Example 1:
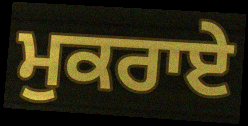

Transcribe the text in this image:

ਮੁਕਰਾਏ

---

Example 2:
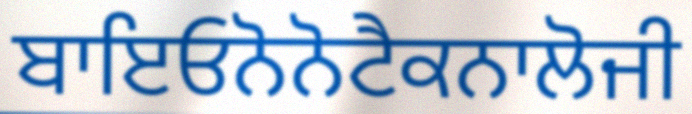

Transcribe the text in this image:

ਬਾਇਓਨੋਨੋਟੈਕਨਾਲੋਜੀ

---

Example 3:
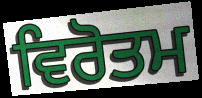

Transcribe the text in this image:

ਵਿਰੋਤਮ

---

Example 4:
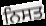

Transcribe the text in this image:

ਨਿਸਤ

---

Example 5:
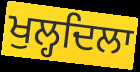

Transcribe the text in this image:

ਖੁਲ੍ਹਦਿਲਾ